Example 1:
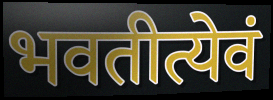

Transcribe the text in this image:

भवतीत्येवं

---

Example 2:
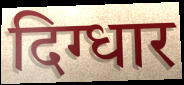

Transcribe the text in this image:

दिग्धार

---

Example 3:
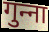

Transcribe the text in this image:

गुन्ना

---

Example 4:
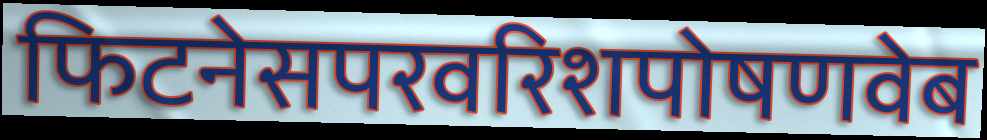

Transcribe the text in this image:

फिटनेसपरवरिशपोषणवेब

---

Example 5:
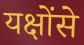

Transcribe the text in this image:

यक्षोंसे